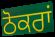
ਠੋਕਰਾਂ